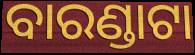
ବାରଣ୍ଡାଟା